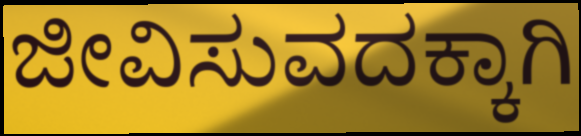
ಜೀವಿಸುವದಕ್ಕಾಗಿ